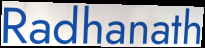
Radhanath